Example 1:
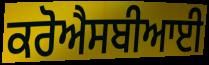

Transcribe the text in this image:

ਕਰੋਐਸਬੀਆਈ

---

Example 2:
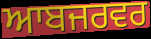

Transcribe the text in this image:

ਆਬਜਰਵਰ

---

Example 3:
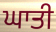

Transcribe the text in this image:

ਘਾਤੀ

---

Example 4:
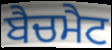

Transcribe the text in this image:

ਬੈਚਮੈਟ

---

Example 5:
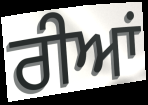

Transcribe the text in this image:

ਰੀਆਂ